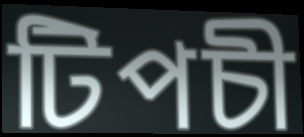
টিপচী